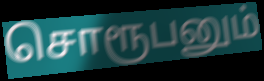
சொரூபனும்